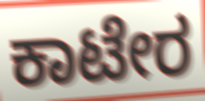
ಕಾಟೇರ